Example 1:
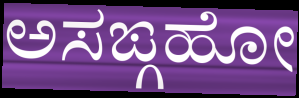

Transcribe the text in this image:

ಅಸಙ್ಗಹೋ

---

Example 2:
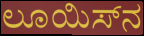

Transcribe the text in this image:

ಲೂಯಿಸ್‌ನ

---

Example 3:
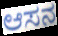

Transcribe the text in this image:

ಆಸನ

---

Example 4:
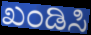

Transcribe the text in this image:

ಖಂಡಿಸಿ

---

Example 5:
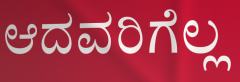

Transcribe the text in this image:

ಆದವರಿಗೆಲ್ಲ